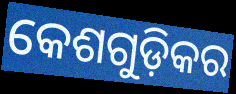
କେଶଗୁଡ଼ିକର